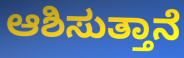
ಆಶಿಸುತ್ತಾನೆ